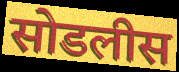
सोडलीस